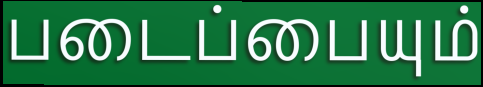
படைப்பையும்